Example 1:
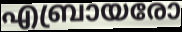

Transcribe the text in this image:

എബ്രായരോ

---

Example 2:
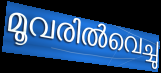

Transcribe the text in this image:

മൂവരിൽവെച്ചു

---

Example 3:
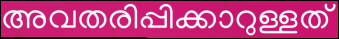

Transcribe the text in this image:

അവതരിപ്പിക്കാറുള്ളത്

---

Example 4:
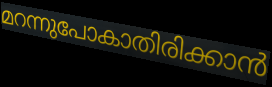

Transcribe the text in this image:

മറന്നുപോകാതിരിക്കാൻ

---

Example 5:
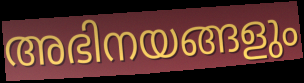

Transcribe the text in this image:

അഭിനയങ്ങളും